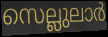
സെല്ലുലാർ